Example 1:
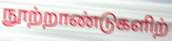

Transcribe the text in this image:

நூற்றாண்டுகளிற்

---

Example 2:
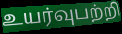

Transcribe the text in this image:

உயர்வுபற்றி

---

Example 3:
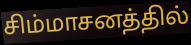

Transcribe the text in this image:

சிம்மாசனத்தில்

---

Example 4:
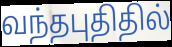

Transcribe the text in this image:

வந்தபுதிதில்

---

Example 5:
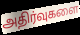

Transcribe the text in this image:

அதிர்வுகளை